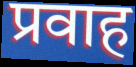
प्रवाह